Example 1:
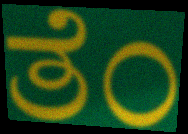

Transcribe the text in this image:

ತೆಂ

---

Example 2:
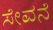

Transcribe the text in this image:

ಸೇವನೆ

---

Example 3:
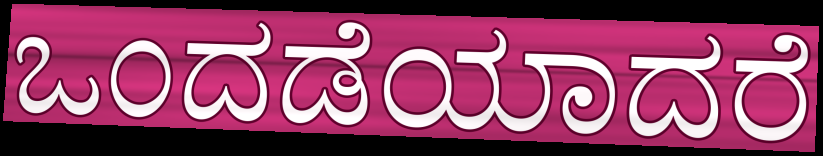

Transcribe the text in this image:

ಒಂದಡೆಯಾದರೆ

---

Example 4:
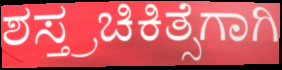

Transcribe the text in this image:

ಶಸ್ತ್ರಚಿಕಿತ್ಸೆಗಾಗಿ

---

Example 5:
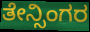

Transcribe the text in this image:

ತೇನ್ಸಿಂಗರ